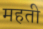
महती